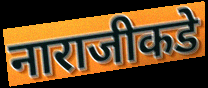
नाराजीकडे